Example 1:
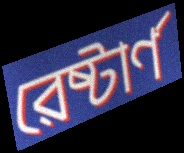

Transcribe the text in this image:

ৱেষ্টাৰ্ণ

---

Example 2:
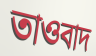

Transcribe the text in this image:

তাওবাদ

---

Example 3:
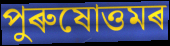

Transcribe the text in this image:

পুৰুষোত্তমৰ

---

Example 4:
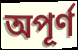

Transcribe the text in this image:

অপূৰ্ণ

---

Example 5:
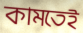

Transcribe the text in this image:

কামতেই